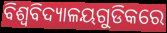
ବିଶ୍ୱବିଦ୍ୟାଳୟଗୁଡିକରେ